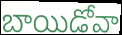
బాయిడోవా